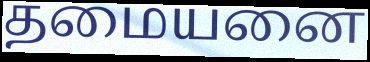
தமையனை